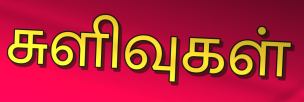
சுளிவுகள்